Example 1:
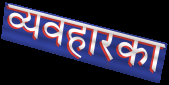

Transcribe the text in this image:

व्यवहारका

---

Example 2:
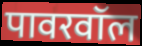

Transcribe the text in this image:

पावरवॉल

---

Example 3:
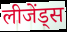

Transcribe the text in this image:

लीजेंड्स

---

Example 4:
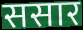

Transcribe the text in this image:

ससार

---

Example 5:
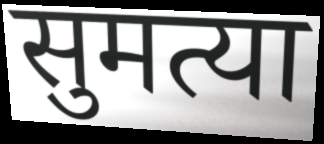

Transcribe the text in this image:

सुमत्या